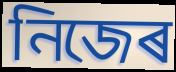
নিজেৰ